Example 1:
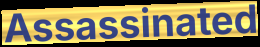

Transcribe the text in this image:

Assassinated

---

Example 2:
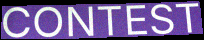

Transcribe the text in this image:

CONTEST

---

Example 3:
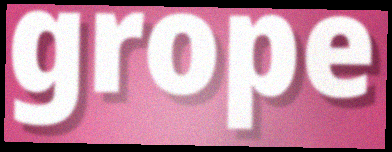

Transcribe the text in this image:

grope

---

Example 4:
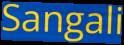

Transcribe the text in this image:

Sangali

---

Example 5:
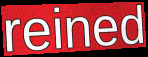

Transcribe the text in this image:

reined